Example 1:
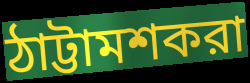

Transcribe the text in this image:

ঠাট্টামশকরা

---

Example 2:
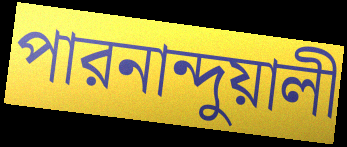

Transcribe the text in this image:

পারনান্দুয়ালী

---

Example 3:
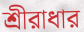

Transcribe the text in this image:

শ্রীরাধার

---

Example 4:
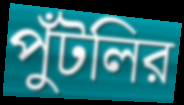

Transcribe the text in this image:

পুঁটলির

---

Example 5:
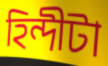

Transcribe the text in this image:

হিন্দীটা